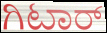
ಗಿಟಾರ್